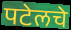
पटेलचे